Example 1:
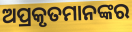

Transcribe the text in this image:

ଅପ୍ରକୃତମାନଙ୍କର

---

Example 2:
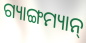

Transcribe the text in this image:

ଗ୍ୟାଙ୍ଗମ୍ୟାନ୍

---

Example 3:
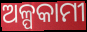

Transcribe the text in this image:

ଅଳ୍ପକାମୀ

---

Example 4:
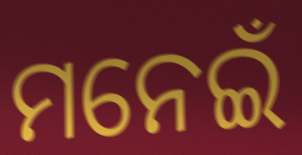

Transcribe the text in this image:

ମନେଇଁ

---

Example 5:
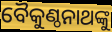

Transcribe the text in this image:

ବୈକୁଣ୍ଠନାଥଙ୍କୁ